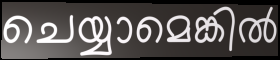
ചെയ്യാമെങ്കിൽ